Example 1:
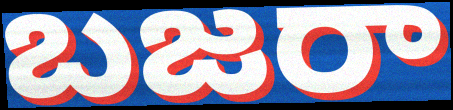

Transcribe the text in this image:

బజరా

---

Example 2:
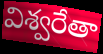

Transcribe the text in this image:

విశ్వరేతా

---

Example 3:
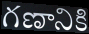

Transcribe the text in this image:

గణానికి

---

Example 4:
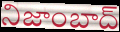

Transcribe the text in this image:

నిజాంబాద్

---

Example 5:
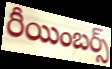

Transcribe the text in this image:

రీయింబర్స్